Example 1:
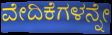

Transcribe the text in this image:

ವೇದಿಕೆಗಳನ್ನೇ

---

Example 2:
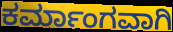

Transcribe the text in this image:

ಕರ್ಮಾಂಗವಾಗಿ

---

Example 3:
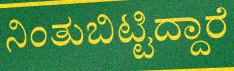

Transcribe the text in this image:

ನಿಂತುಬಿಟ್ಟಿದ್ದಾರೆ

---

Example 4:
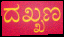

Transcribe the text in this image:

ದಖ್ಖಣ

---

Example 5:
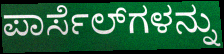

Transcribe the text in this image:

ಪಾರ್ಸೆಲ್‌ಗಳನ್ನು